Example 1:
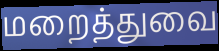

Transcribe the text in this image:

மறைத்துவை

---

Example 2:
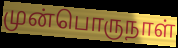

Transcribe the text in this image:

முன்பொருநாள்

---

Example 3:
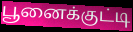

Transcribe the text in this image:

பூனைக்குட்டி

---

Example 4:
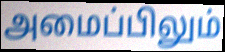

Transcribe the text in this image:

அமைப்பிலும்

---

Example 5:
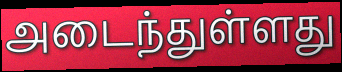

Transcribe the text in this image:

அடைந்துள்ளது